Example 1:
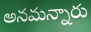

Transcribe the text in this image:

అనమన్నారు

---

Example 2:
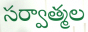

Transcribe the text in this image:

సర్వాత్మల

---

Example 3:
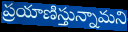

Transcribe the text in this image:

ప్రయాణిస్తున్నామని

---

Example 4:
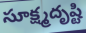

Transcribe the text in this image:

సూక్ష్మదృష్టి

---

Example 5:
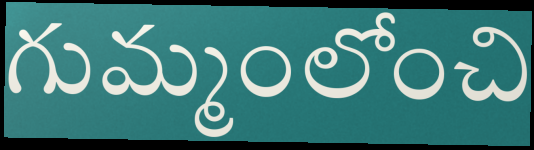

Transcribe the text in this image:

గుమ్మంలోంచి